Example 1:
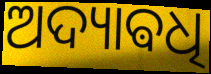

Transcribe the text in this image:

ଅଦ୍ୟାଵଧି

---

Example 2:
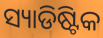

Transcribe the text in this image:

ସ୍ୟାଡିଷ୍ଟିକ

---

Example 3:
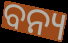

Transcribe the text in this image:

ବନ୍ୟ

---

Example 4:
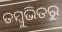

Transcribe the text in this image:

ତମ୍ବୁଭିତରୁ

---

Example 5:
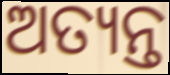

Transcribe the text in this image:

ଅତ୍ୟନ୍ତ